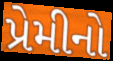
પ્રેમીનો